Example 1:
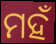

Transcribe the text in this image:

ମହଁ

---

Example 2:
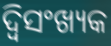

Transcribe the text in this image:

ଦ୍ୱିସଂଖ୍ୟକ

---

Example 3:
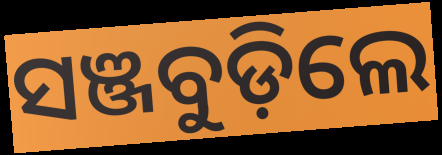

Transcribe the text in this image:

ସଞ୍ଜବୁଡ଼ିଲେ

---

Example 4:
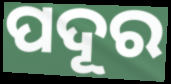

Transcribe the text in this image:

ପଦୂର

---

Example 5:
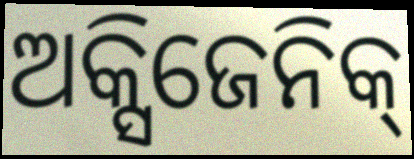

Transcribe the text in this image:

ଅକ୍ସିଜେନିକ୍